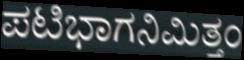
ಪಟಿಭಾಗನಿಮಿತ್ತಂ